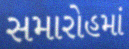
સમારોહમાં